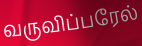
வருவிப்பரேல்